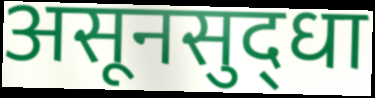
असूनसुद्धा